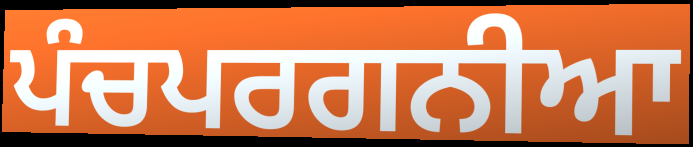
ਪੰਚਪਰਗਨੀਆ